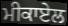
ਮੀਕਾਏਲ